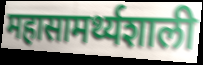
महासामर्थ्यशाली